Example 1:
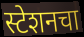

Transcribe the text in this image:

स्टेशनचा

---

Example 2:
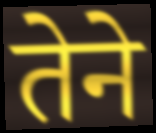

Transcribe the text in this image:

तेने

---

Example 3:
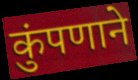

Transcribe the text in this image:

कुंपणाने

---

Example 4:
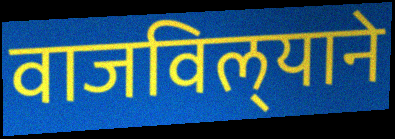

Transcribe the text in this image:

वाजविल्याने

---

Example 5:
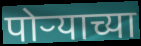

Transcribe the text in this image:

पोऱ्याच्या